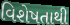
વિશેષતાથી